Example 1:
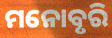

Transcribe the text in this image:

ମନୋବୃରି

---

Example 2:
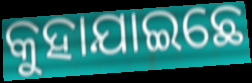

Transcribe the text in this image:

କୁହାଯାଇଛେ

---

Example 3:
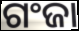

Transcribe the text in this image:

ଗଂଜା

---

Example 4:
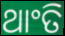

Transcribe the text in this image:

ଥାଂତି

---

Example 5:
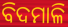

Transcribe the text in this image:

ବିଦମାଳି